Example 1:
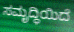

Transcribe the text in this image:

ಸಮೃದ್ಧಿಯಿದೆ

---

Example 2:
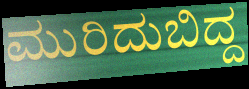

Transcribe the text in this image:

ಮುರಿದುಬಿದ್ದ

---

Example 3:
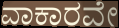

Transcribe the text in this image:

ವಾಕಾರವೇ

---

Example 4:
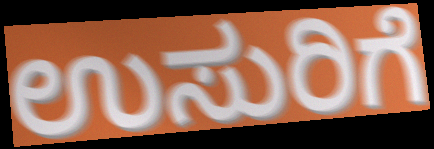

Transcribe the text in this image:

ಉಸುರಿಗೆ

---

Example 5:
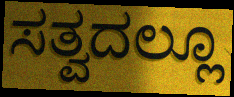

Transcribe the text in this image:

ಸತ್ವದಲ್ಲೂ